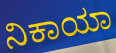
ನಿಕಾಯಾ